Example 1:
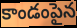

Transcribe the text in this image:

కాండంపైన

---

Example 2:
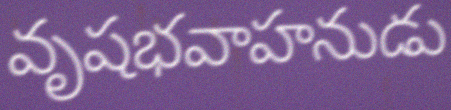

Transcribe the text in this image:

వృషభవాహనుడు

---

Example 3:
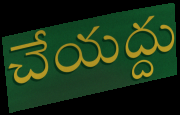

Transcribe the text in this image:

చేయద్దు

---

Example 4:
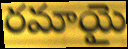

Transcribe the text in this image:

రమాయై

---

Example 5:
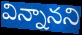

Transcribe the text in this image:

విన్నానని